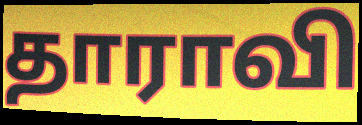
தாராவி